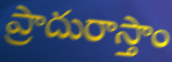
ప్రాదురాస్తాం